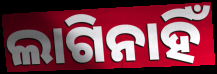
ଲାଗିନାହିଁ